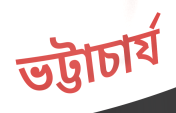
ভট্টাচার্য